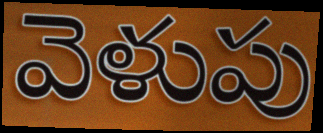
వెళుపు